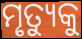
ମୃତ୍ୟୁକୁ